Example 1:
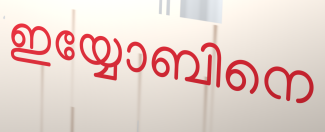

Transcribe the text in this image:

ഇയ്യോബിനെ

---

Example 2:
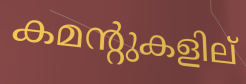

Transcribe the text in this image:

കമന്റുകളില്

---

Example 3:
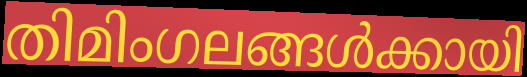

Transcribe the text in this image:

തിമിംഗലങ്ങൾക്കായി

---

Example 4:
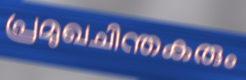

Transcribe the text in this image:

പ്രമുഖചിന്തകരും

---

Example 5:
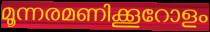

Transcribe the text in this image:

മൂന്നരമണിക്കൂറോളം